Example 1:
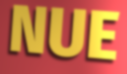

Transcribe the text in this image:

NUE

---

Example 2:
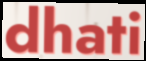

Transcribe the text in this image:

dhati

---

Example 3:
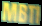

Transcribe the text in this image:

MBTI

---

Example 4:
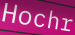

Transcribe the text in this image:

Hochr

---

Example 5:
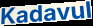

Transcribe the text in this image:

Kadavul